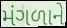
મંગળાને